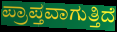
ಪ್ರಾಪ್ತವಾಗುತ್ತಿದೆ